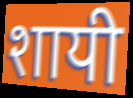
शायी